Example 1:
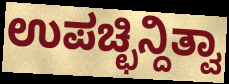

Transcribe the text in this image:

ಉಪಚ್ಛಿನ್ದಿತ್ವಾ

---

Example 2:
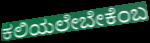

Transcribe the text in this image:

ಕಲಿಯಲೇಬೇಕೆಂಬ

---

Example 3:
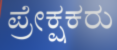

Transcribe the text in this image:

ಪ್ರೇಕ್ಷಕರು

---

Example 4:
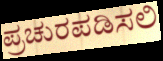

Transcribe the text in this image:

ಪ್ರಚುರಪಡಿಸಲಿ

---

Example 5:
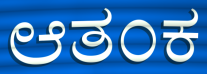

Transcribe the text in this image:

ಆತಂಕ